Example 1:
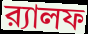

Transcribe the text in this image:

র‍্যালফ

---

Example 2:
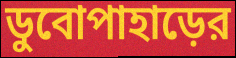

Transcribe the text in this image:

ডুবোপাহাড়ের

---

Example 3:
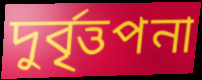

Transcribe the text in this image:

দুর্বৃত্তপনা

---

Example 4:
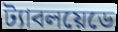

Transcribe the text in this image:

ট্যাবলয়েডে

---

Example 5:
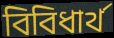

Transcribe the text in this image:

বিবিধার্থ